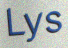
Lys